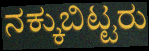
ನಕ್ಕುಬಿಟ್ಟರು